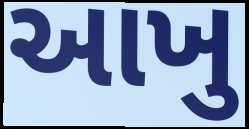
આખુ